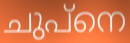
ചുപ്നെ